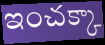
ఇంచక్కా